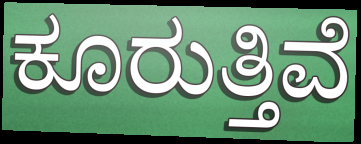
ಕೂರುತ್ತಿವೆ